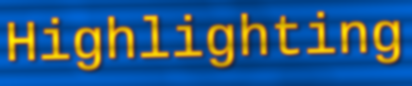
Highlighting